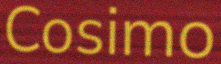
Cosimo